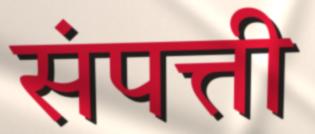
संपत्ती